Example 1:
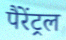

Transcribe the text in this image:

पैरेंट्रल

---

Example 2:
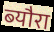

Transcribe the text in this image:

ब्‍यौरा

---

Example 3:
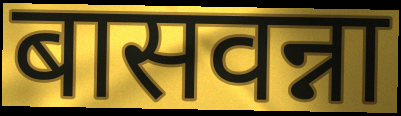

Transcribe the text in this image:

बासवन्ना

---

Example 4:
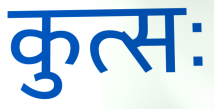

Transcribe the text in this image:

कुत्सः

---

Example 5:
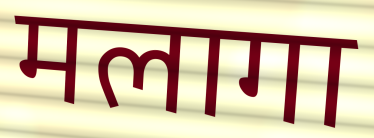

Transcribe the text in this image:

मलागा